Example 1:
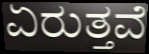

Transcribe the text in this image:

ಏರುತ್ತವೆ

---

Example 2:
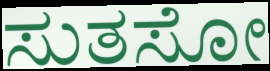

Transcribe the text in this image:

ಸುತಸೋ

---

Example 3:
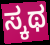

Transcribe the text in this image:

ಸ್ಕಥ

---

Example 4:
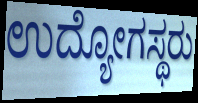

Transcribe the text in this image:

ಉದ್ಯೋಗಸ್ಥರು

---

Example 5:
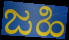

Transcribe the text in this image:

ಜಹಿ